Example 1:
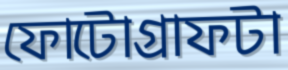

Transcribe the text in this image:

ফোটোগ্রাফটা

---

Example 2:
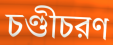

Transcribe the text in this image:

চণ্ডীচরণ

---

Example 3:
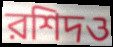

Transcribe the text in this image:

রশিদও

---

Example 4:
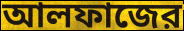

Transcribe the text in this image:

আলফাজের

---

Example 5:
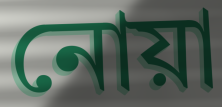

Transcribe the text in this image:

নোয়া